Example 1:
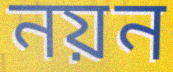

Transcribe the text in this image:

নয়ন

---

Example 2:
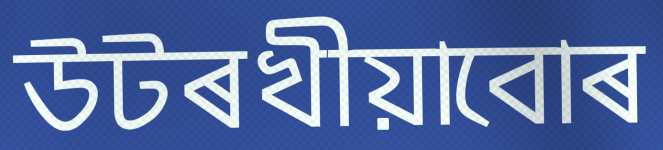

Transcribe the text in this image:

উটৰখীয়াবোৰ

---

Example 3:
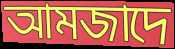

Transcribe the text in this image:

আমজাদে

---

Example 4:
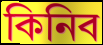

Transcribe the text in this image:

কিনিব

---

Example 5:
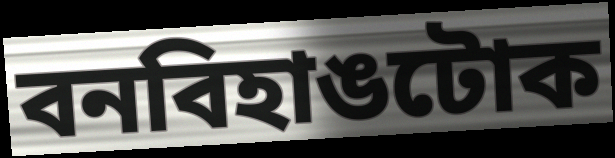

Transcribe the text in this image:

বনবিহাঙটোক